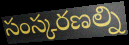
సంస్కరణల్ని